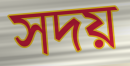
সদয়